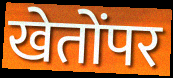
खेतोंपर